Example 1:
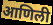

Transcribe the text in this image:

आणिली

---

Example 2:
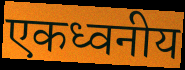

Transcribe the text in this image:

एकध्वनीय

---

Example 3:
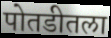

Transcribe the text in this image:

पोतडीतला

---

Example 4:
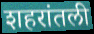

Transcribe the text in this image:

शहरांतली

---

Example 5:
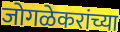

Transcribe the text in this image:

जोगळेकरांच्या